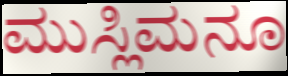
ಮುಸ್ಲಿಮನೂ